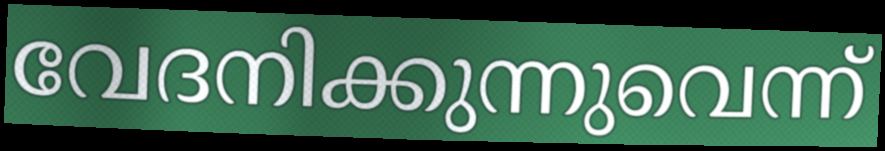
വേദനിക്കുന്നുവെന്ന്